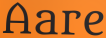
Aare